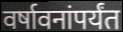
वर्षावनांपर्यंत